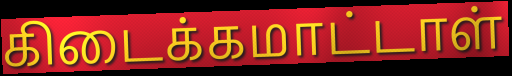
கிடைக்கமாட்டாள்